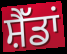
ਸ਼ੈੱਡਾਂ